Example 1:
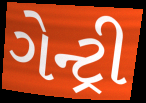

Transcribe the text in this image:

ગેન્ટ્રી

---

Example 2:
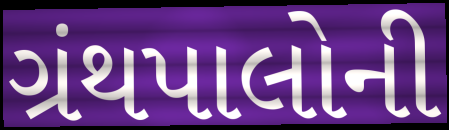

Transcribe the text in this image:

ગ્રંથપાલોની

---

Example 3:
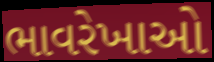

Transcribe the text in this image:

ભાવરેખાઓ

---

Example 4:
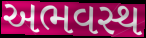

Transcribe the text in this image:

અભવસ્થ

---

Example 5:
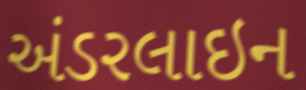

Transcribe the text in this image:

અંડરલાઇન